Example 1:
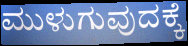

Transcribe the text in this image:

ಮುಳುಗುವುದಕ್ಕೆ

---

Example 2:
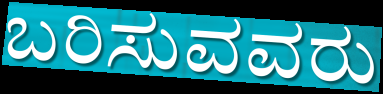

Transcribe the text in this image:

ಬರಿಸುವವರು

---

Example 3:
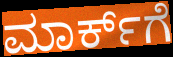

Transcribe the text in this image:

ಮಾರ್ಕ್‌ಗೆ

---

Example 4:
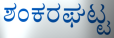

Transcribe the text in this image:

ಶಂಕರಘಟ್ಟ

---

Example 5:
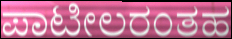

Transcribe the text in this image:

ಪಾಟೀಲರಂತಹ